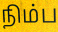
நிம்ப